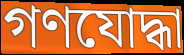
গণযোদ্ধা